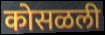
कोसळली